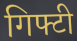
गिफ्टी